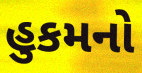
હુકમનો